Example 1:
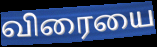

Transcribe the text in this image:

விரையை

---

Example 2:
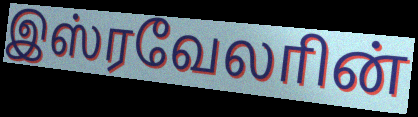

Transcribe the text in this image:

இஸ்ரவேலரின்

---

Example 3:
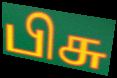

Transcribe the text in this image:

பிசு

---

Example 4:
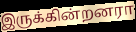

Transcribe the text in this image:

இருக்கின்றனரா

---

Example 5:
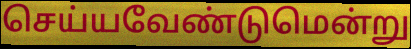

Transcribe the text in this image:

செய்யவேண்டுமென்று